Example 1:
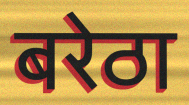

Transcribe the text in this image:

बरेठा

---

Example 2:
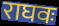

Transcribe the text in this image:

राघवः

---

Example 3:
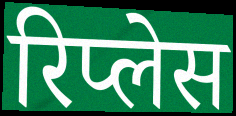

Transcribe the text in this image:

रिप्लेस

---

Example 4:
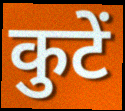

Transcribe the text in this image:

कुटें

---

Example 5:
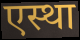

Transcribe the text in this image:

एस्था